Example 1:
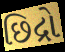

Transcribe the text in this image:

છિદ્રો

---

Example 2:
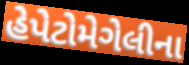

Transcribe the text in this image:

હેપેટોમેગેલીના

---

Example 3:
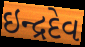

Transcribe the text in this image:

ઇન્દ્રદેવ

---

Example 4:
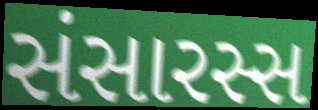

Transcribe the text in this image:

સંસારસ્સ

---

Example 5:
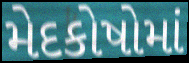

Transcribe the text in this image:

મેદકોષોમાં